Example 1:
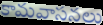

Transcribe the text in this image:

కామవాసనలు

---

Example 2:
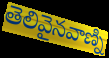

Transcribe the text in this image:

తెలివైనవాణ్ని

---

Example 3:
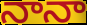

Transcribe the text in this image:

నానా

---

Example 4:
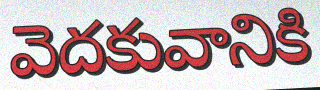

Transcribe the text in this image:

వెదకువానికి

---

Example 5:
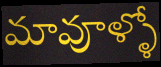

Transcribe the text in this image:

మావూళ్ళో